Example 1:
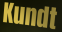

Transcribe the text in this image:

Kundt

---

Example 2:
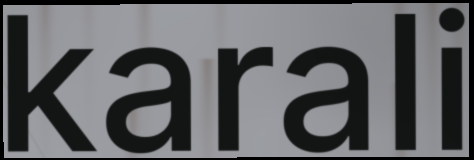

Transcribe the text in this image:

karali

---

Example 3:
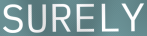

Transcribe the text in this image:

SURELY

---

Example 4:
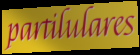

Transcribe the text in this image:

partilulares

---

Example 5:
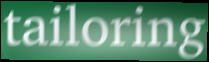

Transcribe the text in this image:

tailoring